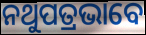
ନଥୁପତ୍ରଭାବେ